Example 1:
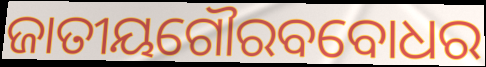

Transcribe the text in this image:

ଜାତୀୟଗୌରବବୋଧର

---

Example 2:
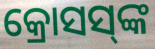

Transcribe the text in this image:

କ୍ରୋସସ୍‌ଙ୍କ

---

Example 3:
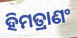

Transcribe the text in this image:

ହିମତ୍ରାଣଂ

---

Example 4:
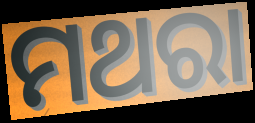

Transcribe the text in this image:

ମଥରା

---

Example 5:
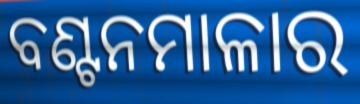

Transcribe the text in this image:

ବଣ୍ଟନମାଳାର